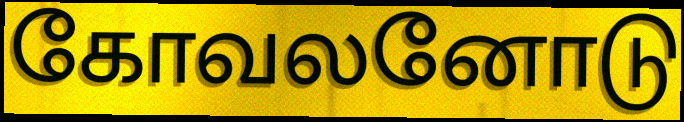
கோவலனோடு